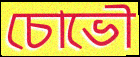
চোভৌ